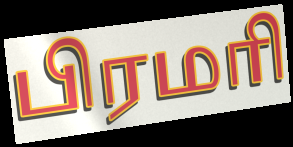
பிரமரி